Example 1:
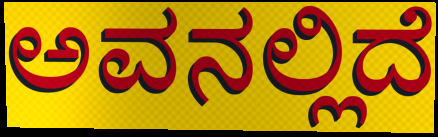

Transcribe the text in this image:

ಅವನಲ್ಲಿದೆ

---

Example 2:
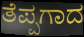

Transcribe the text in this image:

ತೆಪ್ಪಗಾದ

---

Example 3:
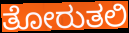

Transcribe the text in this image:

ತೋರುತಲಿ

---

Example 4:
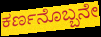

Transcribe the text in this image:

ಕರ್ಣನೊಬ್ಬನೇ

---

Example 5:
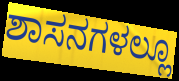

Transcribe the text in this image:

ಶಾಸನಗಳಲ್ಲೂ